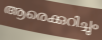
ആരെക്കുറിച്ചും